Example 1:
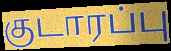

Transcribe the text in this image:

குடாரப்பு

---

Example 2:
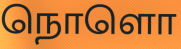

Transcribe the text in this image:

நொளொ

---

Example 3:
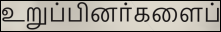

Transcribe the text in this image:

உறுப்பினர்களைப்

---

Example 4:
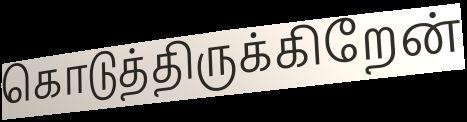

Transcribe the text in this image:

கொடுத்திருக்கிறேன்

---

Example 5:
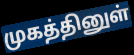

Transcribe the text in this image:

முகத்தினுள்